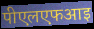
पीएलएफआइ